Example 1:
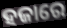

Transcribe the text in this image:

ହଜାରେ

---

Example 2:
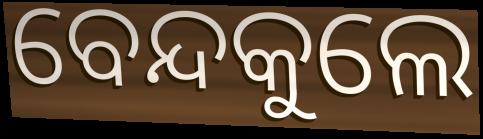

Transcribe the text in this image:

ବେନ୍ଦକୁଲେ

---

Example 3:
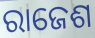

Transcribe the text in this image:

ରାଜେଶ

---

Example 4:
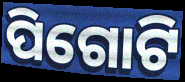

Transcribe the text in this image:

ପିଗୋଟି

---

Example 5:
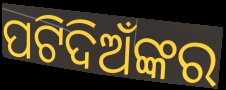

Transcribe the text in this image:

ପଟିଦିଅଁଙ୍କର